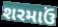
શરમાઉં